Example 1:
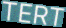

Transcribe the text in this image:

TERT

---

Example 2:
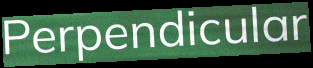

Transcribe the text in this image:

Perpendicular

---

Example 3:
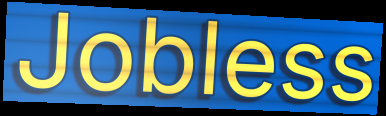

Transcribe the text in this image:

Jobless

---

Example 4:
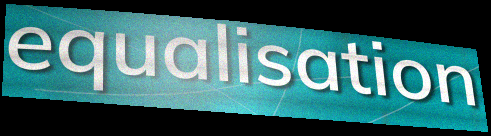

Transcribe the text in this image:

equalisation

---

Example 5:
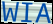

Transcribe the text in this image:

WIA